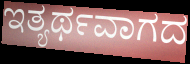
ಇತ್ಯರ್ಥವಾಗದ